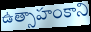
ఉత్సాహంకాని